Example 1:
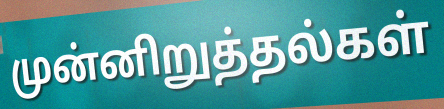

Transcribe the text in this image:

முன்னிறுத்தல்கள்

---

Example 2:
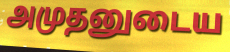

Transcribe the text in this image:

அமுதனுடைய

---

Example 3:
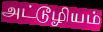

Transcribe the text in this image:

அட்டூழியம்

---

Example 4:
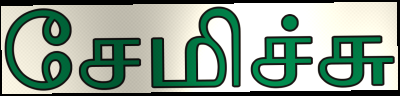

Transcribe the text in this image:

சேமிச்சு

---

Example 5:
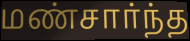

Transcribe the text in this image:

மண்சார்ந்த